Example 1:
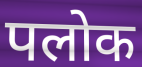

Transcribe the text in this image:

पलोक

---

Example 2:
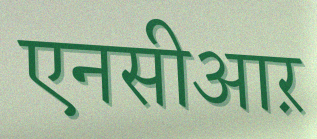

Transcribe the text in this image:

एनसीआऱ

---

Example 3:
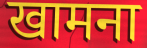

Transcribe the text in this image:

खामना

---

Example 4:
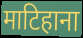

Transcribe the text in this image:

माटिहाना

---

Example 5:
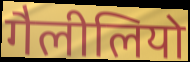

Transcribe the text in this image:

गैलीलियो